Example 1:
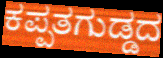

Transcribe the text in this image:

ಕಪ್ಪತಗುಡ್ಡದ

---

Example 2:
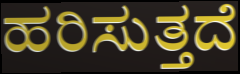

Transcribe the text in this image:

ಹರಿಸುತ್ತದೆ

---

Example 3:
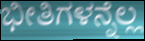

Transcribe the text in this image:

ಭೀತಿಗಳನ್ನೆಲ್ಲ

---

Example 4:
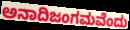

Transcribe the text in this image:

ಅನಾದಿಜಂಗಮವೆಂದು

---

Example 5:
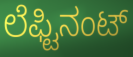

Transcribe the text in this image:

ಲೆಫ್ಟಿನಂಟ್